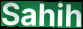
Sahih